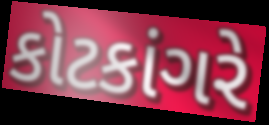
કોટકાંગરે